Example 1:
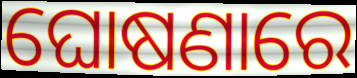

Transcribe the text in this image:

ଘୋଷଣାରେ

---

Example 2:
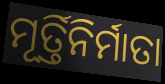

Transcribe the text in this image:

ମୂର୍ତ୍ତିନିର୍ମାତା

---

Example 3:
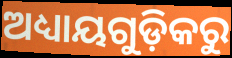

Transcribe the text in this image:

ଅଧ୍ୟାୟଗୁଡ଼ିକରୁ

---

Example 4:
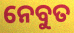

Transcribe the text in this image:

ନେବୁତ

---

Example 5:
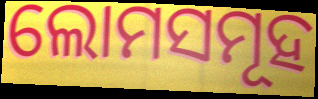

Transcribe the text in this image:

ଲୋମସମୂହ